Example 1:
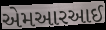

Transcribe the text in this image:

એમઆરઆઈ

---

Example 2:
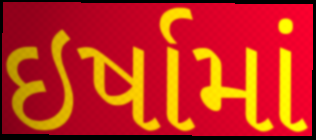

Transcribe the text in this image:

ઇર્ષામાં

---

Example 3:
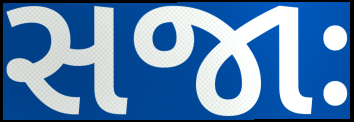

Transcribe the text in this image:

સજાઃ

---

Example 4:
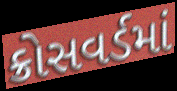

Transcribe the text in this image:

ક્રોસવર્ડમાં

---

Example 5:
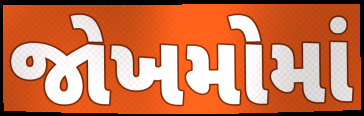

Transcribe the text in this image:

જોખમોમાં